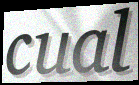
cual